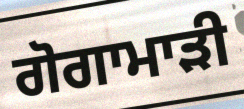
ਗੋਗਾਮਾੜੀ